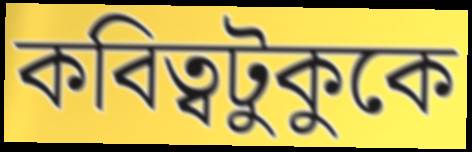
কবিত্বটুকুকে